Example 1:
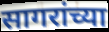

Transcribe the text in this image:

सागरांच्या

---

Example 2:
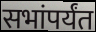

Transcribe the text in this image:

सभांपर्यंत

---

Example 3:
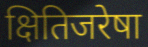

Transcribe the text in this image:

क्षितिजरेषा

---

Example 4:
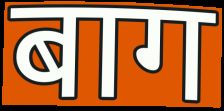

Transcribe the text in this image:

बाग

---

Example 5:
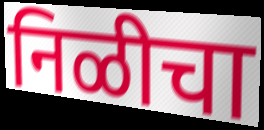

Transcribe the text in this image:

निळीचा